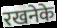
रखनेके